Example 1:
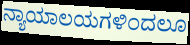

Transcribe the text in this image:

ನ್ಯಾಯಾಲಯಗಳಿಂದಲೂ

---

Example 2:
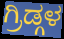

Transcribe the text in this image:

ಗ್ರಿಡ್ಗಳ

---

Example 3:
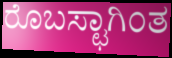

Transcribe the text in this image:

ರೊಬಸ್ಟಾಗಿಂತ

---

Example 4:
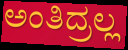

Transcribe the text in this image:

ಅಂತಿದ್ರಲ್ಲ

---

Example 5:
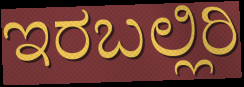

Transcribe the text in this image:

ಇರಬಲ್ಲಿರಿ